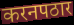
करनपठार